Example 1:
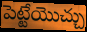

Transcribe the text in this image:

పెట్టేయొచ్చు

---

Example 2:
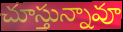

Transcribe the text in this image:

చూస్తున్నావూ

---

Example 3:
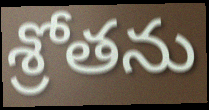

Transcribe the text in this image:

శ్రోతను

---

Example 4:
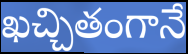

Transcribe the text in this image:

ఖచ్చితంగానే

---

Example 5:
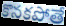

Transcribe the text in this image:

కొనకపోతే